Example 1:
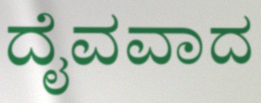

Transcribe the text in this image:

ದೈವವಾದ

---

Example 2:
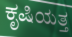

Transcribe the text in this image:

ಕೃಷಿಯತ್ತ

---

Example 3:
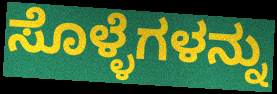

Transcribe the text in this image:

ಸೊಳ್ಳೆಗಳನ್ನು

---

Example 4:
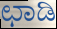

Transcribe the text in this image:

ಛಾಡಿ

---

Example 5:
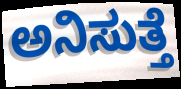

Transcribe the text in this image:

ಅನಿಸುತ್ತೆ